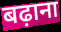
बढ़ाना